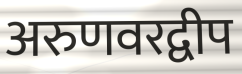
अरुणवरद्वीप